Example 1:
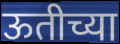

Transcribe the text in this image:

ऊतीच्या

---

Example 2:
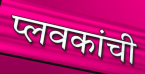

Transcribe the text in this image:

प्लवकांची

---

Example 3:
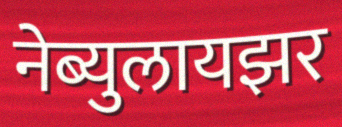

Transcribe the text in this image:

नेब्युलायझर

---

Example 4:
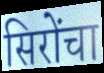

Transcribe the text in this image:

सिरोंचा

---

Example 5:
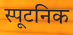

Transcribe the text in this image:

स्पूटनिक